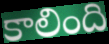
కాలింది